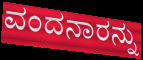
ವಂದನಾರನ್ನು